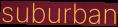
suburban